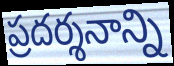
ప్రదర్శనాన్ని